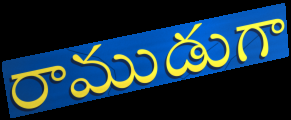
రాముడుగా